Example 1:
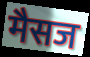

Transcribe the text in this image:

मैसज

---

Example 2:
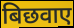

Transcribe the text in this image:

बिछवाए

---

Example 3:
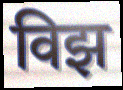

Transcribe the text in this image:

विझ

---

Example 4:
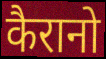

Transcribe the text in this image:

कैरानो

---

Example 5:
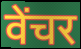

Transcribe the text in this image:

वेंचर